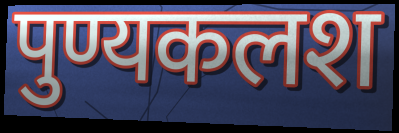
पुण्यकलश